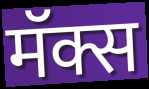
मॅक्स